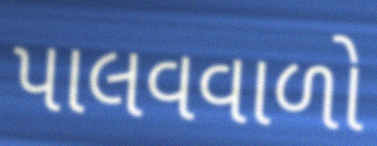
પાલવવાળો